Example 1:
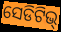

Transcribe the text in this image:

ସେଡିଟିଭ୍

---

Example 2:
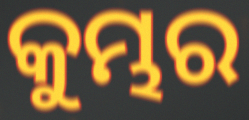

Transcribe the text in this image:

କୁମ୍ଭର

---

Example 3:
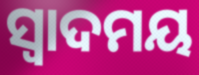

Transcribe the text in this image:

ସ୍ଵାଦମୟ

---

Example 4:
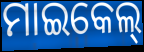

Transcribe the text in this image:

ମାଇକେଲ୍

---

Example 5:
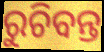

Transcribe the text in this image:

ରୁଚିବନ୍ତ